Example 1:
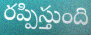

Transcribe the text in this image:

రప్పిస్తుంది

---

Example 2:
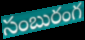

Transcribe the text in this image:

సంబురంగ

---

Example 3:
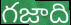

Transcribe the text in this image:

గజాది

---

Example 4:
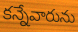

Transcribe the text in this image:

కన్నేవారును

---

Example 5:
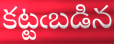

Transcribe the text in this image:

కట్టఁబడిన